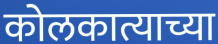
कोलकात्याच्या